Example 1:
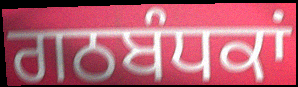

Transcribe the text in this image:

ਗਠਬੰਧਕਾਂ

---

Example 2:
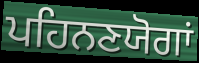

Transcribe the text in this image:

ਪਹਿਨਣਯੋਗਾਂ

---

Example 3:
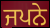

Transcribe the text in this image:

ਜਪਨੇ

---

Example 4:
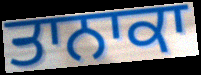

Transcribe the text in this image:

ਤਾਨਾਕਾ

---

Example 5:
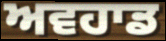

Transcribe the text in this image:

ਅਵਹਾਡ